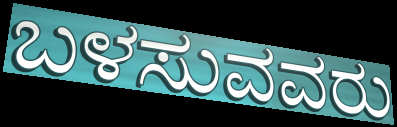
ಬಳಸುವವರು